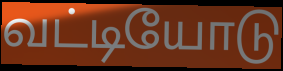
வட்டியோடு